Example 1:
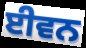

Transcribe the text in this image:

ਈਵਨ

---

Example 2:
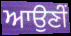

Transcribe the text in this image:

ਆਉਣੀੰ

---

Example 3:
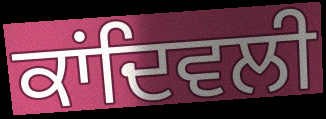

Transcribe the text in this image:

ਕਾਂਦਿਵਲੀ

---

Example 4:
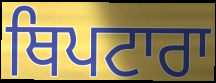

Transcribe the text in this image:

ਥਿਪਟਾਰਾ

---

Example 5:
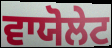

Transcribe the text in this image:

ਵਾਯੋਲੇਟ